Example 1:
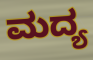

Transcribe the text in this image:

ಮದ್ಯ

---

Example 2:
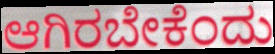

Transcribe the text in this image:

ಆಗಿರಬೇಕೆಂದು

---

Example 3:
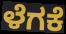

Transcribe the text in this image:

ಳೆಗಕೆ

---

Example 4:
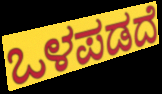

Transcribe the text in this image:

ಒಳಪಡದೆ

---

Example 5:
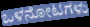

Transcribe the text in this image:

ಒಳನೋಟಗಳು